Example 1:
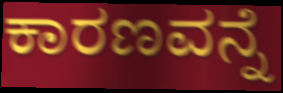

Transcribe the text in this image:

ಕಾರಣವನ್ನೆ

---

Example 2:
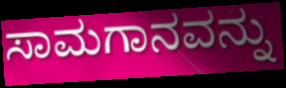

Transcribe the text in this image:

ಸಾಮಗಾನವನ್ನು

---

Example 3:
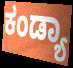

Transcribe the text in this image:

ಕಂಡ್ಯಾ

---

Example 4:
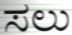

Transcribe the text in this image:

ಸಲು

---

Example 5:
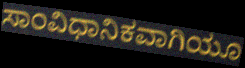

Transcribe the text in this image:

ಸಾಂವಿಧಾನಿಕವಾಗಿಯೂ